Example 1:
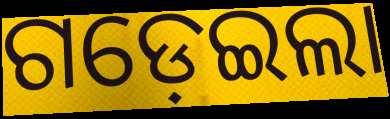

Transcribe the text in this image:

ଗଡ଼େଇଲା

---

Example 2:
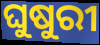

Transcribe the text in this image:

ଘୁଷୁରୀ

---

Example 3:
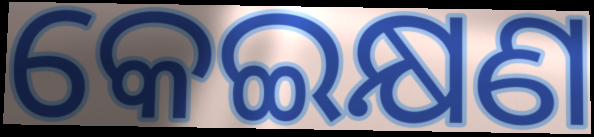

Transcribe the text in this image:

କେଇକ୍ଷଣ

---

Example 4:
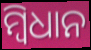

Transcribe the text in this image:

ମ୍ବିଧାନ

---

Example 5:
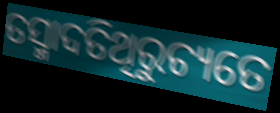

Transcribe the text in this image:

ତସ୍ମାଦତିଥିରୁଚ୍ୟତେ